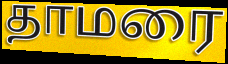
தாமரை